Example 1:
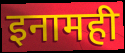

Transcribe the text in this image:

इनामही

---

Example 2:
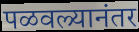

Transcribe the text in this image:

पळवल्यानंतर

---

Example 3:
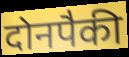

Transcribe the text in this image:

दोनपैकी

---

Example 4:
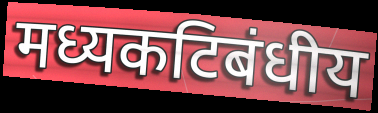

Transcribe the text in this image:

मध्यकटिबंधीय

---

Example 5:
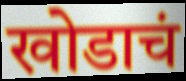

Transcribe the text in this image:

खोडाचं